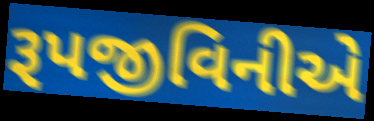
રૂપજીવિનીએ